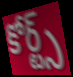
కోర్ట్స్